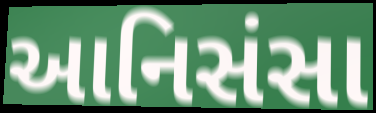
આનિસંસા